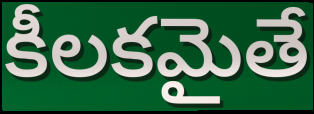
కీలకమైతే